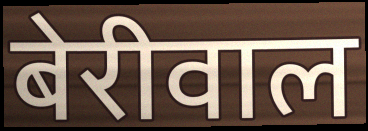
बेरीवाल